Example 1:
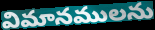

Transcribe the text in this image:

విమానములను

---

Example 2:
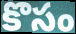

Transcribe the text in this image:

కొసం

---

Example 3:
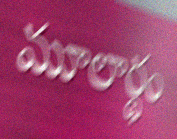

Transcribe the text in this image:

మూలార్థం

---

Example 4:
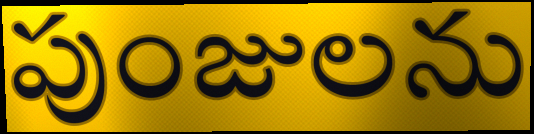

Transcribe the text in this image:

పుంజులను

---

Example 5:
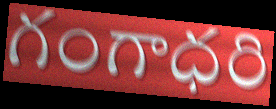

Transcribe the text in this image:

గంగాధరి